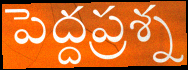
పెద్దప్రశ్న